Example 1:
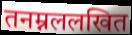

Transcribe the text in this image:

तनम्नललखित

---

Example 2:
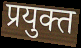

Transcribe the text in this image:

प्रयुक्त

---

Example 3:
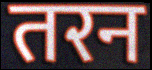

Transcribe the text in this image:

तरन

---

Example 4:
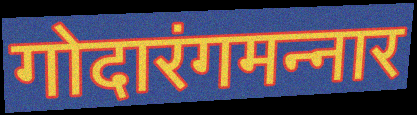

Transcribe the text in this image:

गोदारंगमन्नार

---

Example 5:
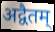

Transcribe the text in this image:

अद्वैतम्